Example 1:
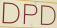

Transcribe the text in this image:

DPD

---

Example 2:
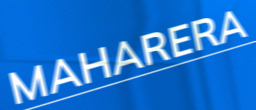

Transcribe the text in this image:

MAHARERA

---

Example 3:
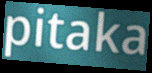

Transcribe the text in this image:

pitaka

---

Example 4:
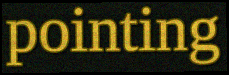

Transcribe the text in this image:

pointing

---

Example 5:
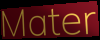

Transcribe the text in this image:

Mater